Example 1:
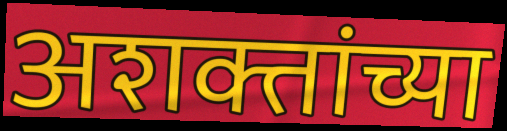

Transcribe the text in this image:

अशक्तांच्या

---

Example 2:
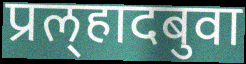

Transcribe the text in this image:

प्रल्हादबुवा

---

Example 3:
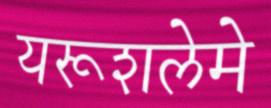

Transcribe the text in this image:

यरूशलेमे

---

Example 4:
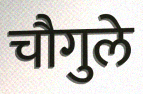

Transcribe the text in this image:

चौगुले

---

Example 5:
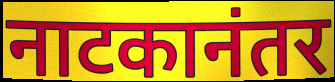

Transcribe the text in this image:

नाटकानंतर